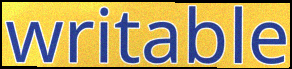
writable